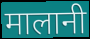
मालानी